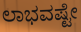
ಲಾಭವಷ್ಟೇ